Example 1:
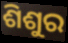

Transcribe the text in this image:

ଶିଶୁର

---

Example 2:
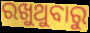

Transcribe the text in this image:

ରଖୁଥୁବାରୁ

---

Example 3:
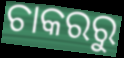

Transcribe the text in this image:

ଚାକରରୁ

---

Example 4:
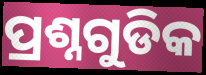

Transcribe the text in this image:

ପ୍ରଶ୍ନଗୁଡିକ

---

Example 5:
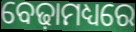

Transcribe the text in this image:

ବେଢ଼ାମଧ୍ୟରେ